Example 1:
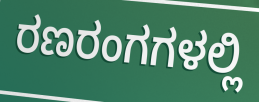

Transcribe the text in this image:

ರಣರಂಗಗಳಲ್ಲಿ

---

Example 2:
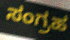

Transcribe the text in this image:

ಸಂಗ್ರಹ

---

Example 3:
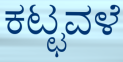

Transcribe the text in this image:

ಕಟ್ಟವಳೆ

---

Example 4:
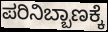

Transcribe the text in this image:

ಪರಿನಿಬ್ಬಾಣಕ್ಕೆ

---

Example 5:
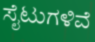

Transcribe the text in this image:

ಸೈಟುಗಳಿವೆ